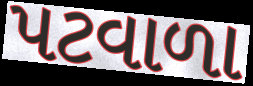
પટવાળા